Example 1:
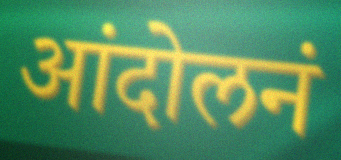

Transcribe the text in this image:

आंदोलनं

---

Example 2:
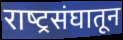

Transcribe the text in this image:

राष्ट्रसंघातून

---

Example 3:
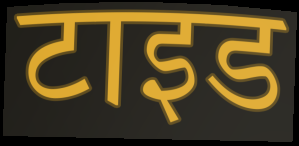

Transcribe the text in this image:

टाइड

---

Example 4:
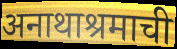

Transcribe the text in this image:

अनाथाश्रमाची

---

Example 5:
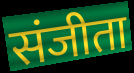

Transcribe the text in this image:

संजीता